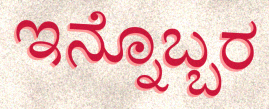
ಇನ್ನೊಬ್ಬರ